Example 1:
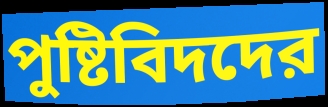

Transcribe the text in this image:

পুষ্টিবিদদের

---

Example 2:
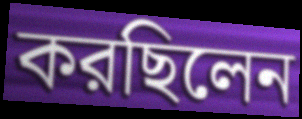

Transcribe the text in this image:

করছিলেন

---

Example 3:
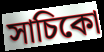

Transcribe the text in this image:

সাচিকো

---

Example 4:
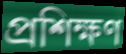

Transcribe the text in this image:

প্রশিক্ষণ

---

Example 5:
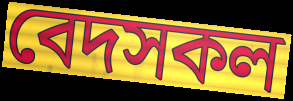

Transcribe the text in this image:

বেদসকল